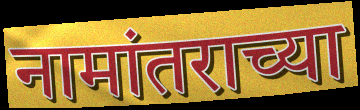
नामांतराच्या